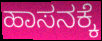
ಹಾಸನಕ್ಕೆ